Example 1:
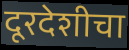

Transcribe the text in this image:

दूरदेशीचा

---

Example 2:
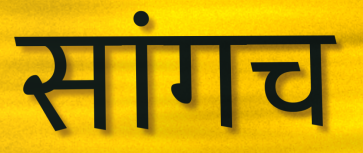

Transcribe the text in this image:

सांगच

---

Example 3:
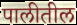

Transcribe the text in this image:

पालीतील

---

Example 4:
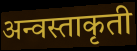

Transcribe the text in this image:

अन्वस्ताकृती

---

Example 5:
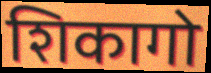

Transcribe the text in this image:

शिकागो